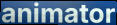
animator